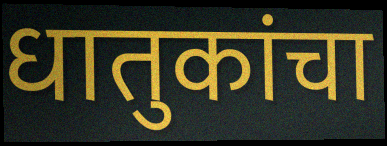
धातुकांचा